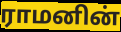
ராமனின்